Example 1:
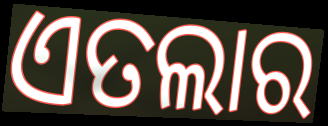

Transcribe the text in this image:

ଏତଲାର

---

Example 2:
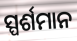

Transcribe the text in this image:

ସ୍ପର୍ଶମାନ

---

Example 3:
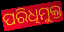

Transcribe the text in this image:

ପରିଧିମୁକ୍ତ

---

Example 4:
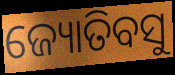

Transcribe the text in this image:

ଜ୍ୟୋତିବସୁ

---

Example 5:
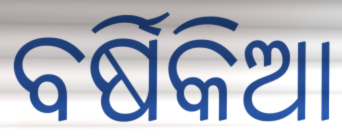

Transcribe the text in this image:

ବର୍ଷିକିଆ